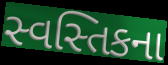
સ્વસ્તિકના